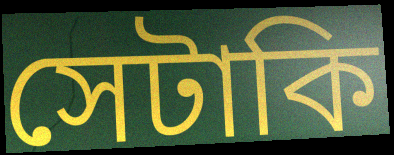
সেটাকি